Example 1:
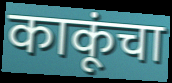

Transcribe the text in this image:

काकूंचा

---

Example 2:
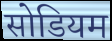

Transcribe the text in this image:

सोडियम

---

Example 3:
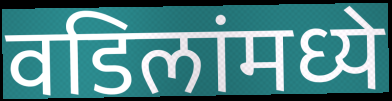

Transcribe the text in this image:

वडिलांमध्ये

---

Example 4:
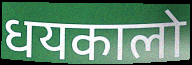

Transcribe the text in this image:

धयकालो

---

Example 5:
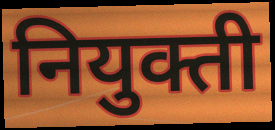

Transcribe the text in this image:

नियुक्ती